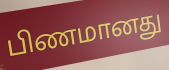
பிணமானது